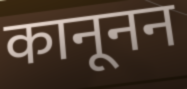
कानूनन